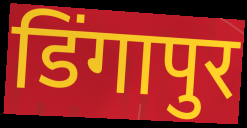
डिंगापुर